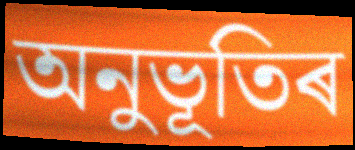
অনুভূতিৰ